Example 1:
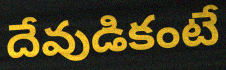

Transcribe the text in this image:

దేవుడికంటే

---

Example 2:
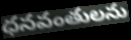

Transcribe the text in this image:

ధనవంతులను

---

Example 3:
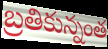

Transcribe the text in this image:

బ్రతికున్నంత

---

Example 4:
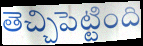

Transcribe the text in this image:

తెచ్చిపెట్టింది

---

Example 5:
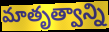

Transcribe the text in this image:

మాతృత్వాన్ని